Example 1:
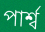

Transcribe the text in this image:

পাৰ্শ্ব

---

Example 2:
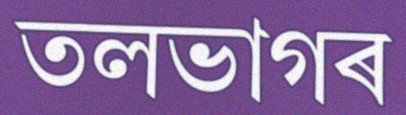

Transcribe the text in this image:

তলভাগৰ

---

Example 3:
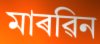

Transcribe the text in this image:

মাৰৱিন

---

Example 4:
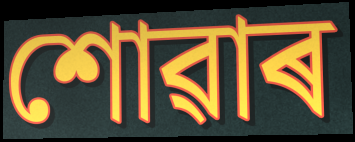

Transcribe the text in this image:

শোৱাৰ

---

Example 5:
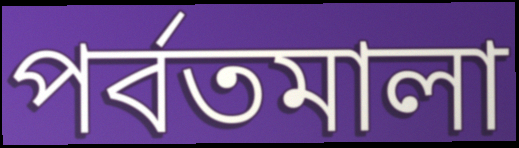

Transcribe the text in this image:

পৰ্বতমালা